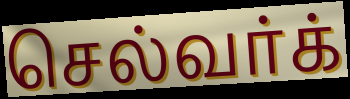
செல்வர்க்